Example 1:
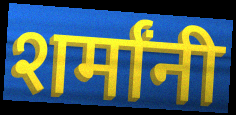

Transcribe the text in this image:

शर्मांनी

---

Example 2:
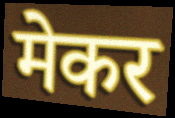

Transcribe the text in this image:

मेकर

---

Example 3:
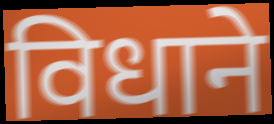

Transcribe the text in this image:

विधाने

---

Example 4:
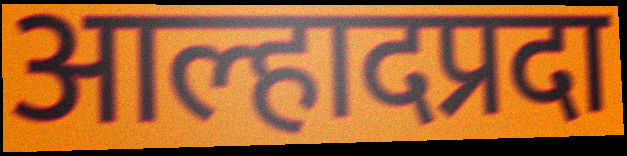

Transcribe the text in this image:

आल्हादप्रदा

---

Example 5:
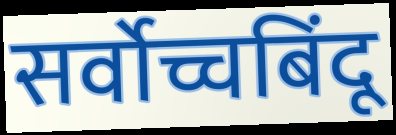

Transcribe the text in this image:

सर्वोच्चबिंदू